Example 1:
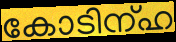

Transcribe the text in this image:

കോടിന്ഹ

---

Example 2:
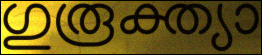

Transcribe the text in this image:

ഗുരൂക്ത്യാ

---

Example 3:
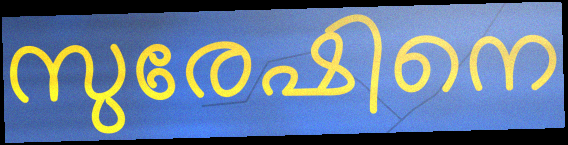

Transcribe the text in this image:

സുരേഷിനെ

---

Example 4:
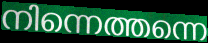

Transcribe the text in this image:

നിന്നെത്തന്നെ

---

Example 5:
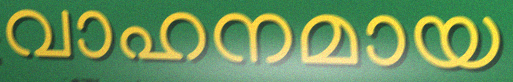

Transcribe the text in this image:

വാഹനമായ